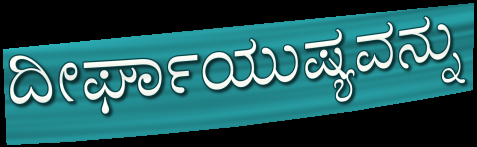
ದೀರ್ಘಾಯುಷ್ಯವನ್ನು